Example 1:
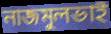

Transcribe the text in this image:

নাজমুলভাই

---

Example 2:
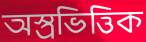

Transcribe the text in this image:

অস্ত্রভিত্তিক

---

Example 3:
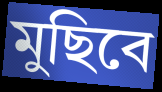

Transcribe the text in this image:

মুছিবে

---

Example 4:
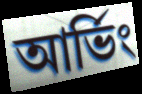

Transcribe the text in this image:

আর্ভিং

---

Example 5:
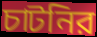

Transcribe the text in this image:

চাটনির